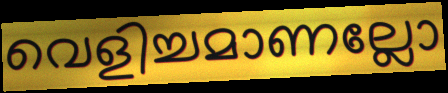
വെളിച്ചമാണല്ലോ